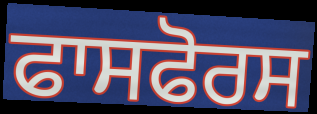
ਫਾਸਫੋਰਸ